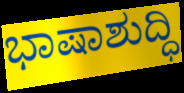
ಭಾಷಾಶುದ್ಧಿ